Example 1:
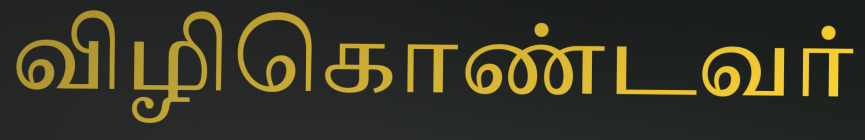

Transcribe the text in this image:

விழிகொண்டவர்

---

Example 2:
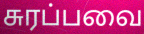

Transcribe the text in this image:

சுரப்பவை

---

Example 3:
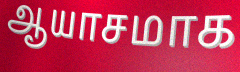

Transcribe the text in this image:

ஆயாசமாக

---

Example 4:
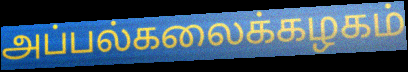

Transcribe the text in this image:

அப்பல்கலைக்கழகம்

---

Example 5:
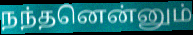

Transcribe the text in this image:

நந்தனென்னும்